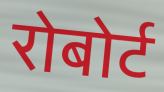
रोबोर्ट